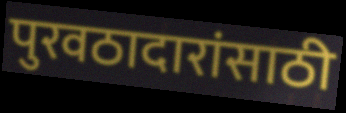
पुरवठादारांसाठी